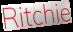
Ritchie